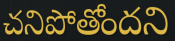
చనిపోతోందని